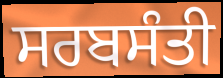
ਸਰਬਸੰਤੀ